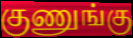
குணுங்கு